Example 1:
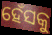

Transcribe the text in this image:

ହେଁସକୁ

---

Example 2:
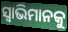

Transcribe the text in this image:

ସ୍ୱାଭିମାନକୁ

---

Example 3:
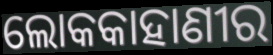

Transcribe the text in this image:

ଲୋକକାହାଣୀର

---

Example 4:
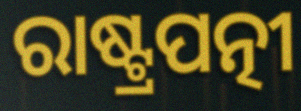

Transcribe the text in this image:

ରାଷ୍ଟ୍ରପତ୍ନୀ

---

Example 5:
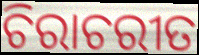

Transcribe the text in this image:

ଚିରାଚରୀତ